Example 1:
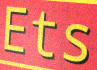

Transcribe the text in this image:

Ets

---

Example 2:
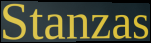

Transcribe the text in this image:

Stanzas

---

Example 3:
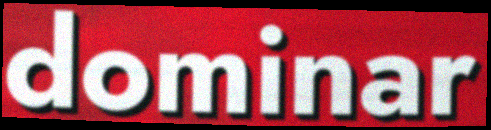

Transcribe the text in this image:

dominar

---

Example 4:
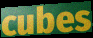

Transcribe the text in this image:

cubes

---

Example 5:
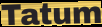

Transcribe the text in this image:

Tatum